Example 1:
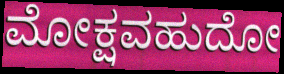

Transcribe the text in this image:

ಮೋಕ್ಷವಹುದೋ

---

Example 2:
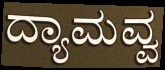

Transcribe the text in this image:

ದ್ಯಾಮವ್ವ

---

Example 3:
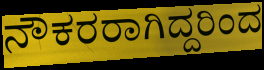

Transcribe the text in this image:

ನೌಕರರಾಗಿದ್ದರಿಂದ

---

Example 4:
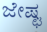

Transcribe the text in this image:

ಜೇಷ್ಟ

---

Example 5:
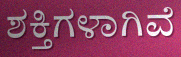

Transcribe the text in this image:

ಶಕ್ತಿಗಳಾಗಿವೆ